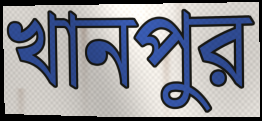
খানপুর